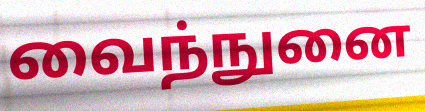
வைந்நுனை